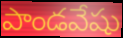
పాండవేషు